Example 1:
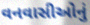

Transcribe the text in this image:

વનવાસીઓનું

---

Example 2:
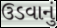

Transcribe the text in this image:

ઉડવાનું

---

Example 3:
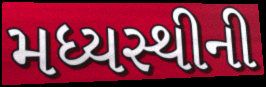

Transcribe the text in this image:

મધ્યસ્થીની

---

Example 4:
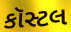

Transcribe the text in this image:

કૉસ્ટલ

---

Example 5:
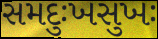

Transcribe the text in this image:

સમદુઃખસુખઃ